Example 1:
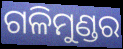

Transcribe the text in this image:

ଗଳିମୁଣ୍ଡର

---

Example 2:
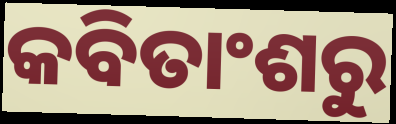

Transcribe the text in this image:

କବିତାଂଶରୁ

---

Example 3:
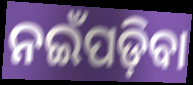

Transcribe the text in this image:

ନଇଁପଡ଼ିବା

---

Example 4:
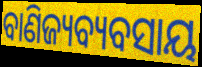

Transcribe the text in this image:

ବାଣିଜ୍ୟବ୍ୟବସାୟ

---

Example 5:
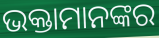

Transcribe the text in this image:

ଭକ୍ତାମାନଙ୍କର